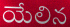
యేలిన